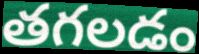
తగలడం